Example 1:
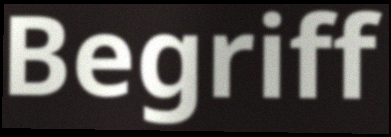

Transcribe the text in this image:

Begriff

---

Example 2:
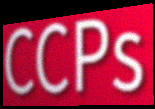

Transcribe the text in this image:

CCPs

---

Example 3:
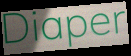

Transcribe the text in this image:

Diaper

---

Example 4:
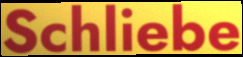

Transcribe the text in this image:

Schliebe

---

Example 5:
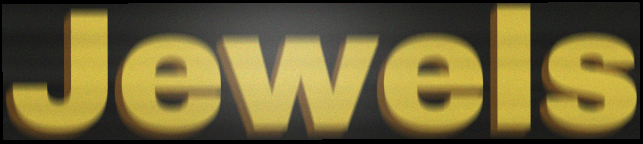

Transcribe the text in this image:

Jewels